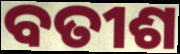
ବତୀଶ